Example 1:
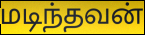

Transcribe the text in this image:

மடிந்தவன்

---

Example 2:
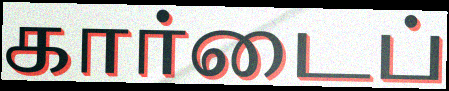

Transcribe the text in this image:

கார்டைப்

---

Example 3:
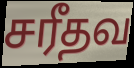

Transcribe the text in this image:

சரீதவ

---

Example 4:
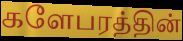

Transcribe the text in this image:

களேபரத்தின்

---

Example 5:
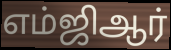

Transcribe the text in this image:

எம்ஜிஆர்